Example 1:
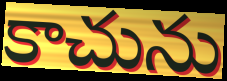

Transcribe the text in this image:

కాచును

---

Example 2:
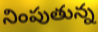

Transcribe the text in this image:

నింపుతున్న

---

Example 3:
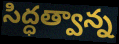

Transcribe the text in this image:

సిద్ధత్వాన్న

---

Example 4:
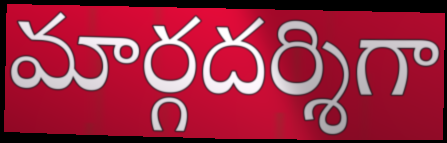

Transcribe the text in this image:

మార్గదర్శిగా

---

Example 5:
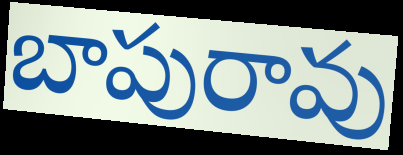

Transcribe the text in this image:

బాపురావు